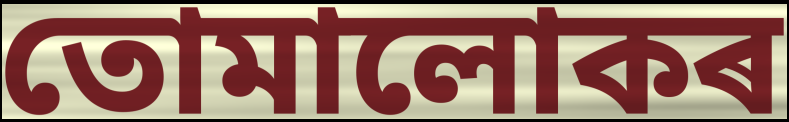
তোমালোকৰ